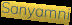
Sanyamni